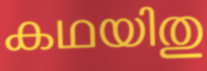
കഥയിതു